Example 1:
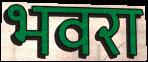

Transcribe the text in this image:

भवरा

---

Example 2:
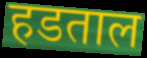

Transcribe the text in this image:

हडताल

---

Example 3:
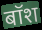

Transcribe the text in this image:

बॉश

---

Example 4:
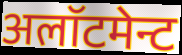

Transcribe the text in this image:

अलॉटमेन्ट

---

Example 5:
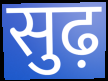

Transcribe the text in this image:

सुढ़